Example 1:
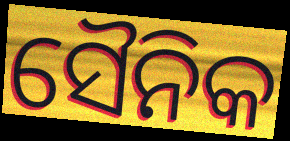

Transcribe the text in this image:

ସୈନିକ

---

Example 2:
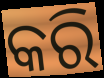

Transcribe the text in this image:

କରି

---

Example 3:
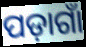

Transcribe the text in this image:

ପଡ଼ାଗାଁ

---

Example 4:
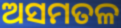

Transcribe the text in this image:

ଅସମତଳ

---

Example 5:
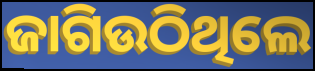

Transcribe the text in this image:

ଜାଗିଉଠିଥିଲେ